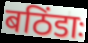
बठिंडाः